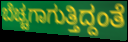
ಬೆಚ್ಚಗಾಗುತ್ತಿದ್ದಂತೆ